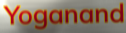
Yoganand